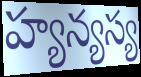
హ్యన్యస్య